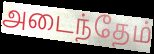
அடைந்தேம்